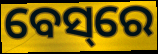
ବେସ୍‌ରେ